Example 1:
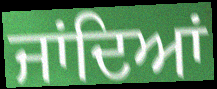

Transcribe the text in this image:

ਜਾਂਦਿਆਂ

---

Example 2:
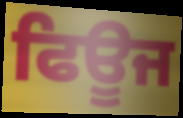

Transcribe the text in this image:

ਫਿਊਜ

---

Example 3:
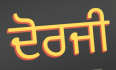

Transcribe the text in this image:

ਦੋਰਜੀ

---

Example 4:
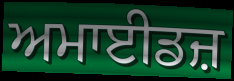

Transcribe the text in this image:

ਅਮਾਈਡਜ਼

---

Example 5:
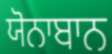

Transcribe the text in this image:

ਯੋਨਾਬਾਨ